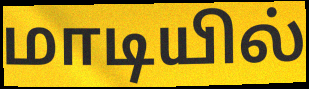
மாடியில்